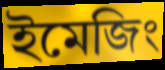
ইমেজিং